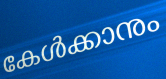
കേൾക്കാനും